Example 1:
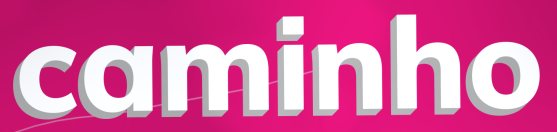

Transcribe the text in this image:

caminho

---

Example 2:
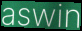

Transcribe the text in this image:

aswin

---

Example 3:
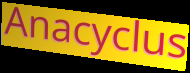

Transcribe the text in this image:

Anacyclus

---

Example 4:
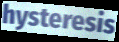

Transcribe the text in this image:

hysteresis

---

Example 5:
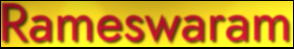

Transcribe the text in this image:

Rameswaram